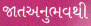
જાતઅનુભવથી